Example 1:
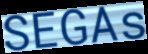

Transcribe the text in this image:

SEGAs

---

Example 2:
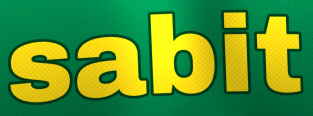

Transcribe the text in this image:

sabit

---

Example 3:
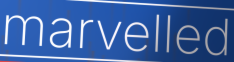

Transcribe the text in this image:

marvelled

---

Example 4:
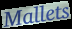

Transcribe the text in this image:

Mallets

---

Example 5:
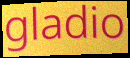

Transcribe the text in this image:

gladio